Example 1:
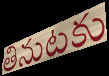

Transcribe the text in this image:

తినుటకు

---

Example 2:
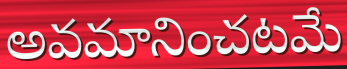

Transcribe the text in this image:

అవమానించటమే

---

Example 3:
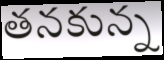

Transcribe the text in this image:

తనకున్న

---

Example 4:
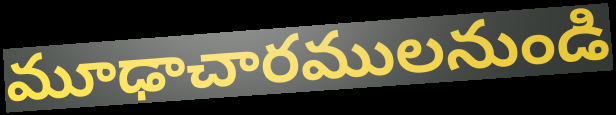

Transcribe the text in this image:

మూఢాచారములనుండి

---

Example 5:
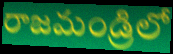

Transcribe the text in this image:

రాజమండ్రిలో